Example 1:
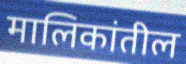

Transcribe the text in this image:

मालिकांतील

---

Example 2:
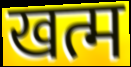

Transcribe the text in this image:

खत्म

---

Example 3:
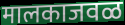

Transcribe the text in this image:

मालकाजवळ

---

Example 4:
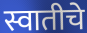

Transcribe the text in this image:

स्वातीचे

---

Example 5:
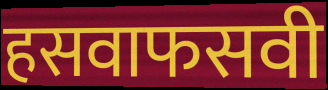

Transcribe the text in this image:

हसवाफसवी